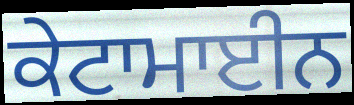
ਕੇਟਾਮਾਈਨ